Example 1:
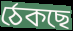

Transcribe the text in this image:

ঠেকছে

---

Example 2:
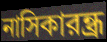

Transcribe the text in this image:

নাসিকারন্ধ্র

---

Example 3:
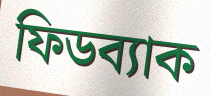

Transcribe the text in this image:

ফিডব্যাক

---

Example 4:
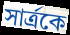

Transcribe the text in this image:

সার্ত্রকে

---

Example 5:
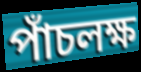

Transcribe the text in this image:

পাঁচলক্ষ